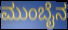
ಮುಂಬೈನ